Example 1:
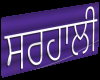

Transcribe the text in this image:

ਸਰਹਾਲੀ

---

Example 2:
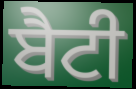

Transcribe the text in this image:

ਬੈਟੀ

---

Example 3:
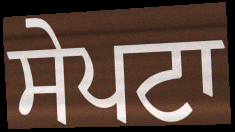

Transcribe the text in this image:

ਸੇਪਟਾ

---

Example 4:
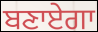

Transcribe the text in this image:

ਬਣਾਏਗਾ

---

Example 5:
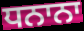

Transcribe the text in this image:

ਧਨਾਨਾ